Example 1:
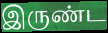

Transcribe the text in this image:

இருண்ட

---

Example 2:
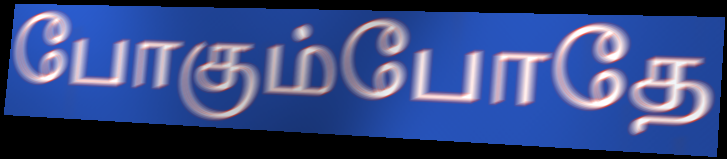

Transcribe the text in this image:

போகும்போதே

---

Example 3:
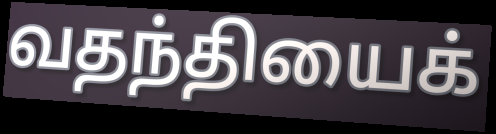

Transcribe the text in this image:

வதந்தியைக்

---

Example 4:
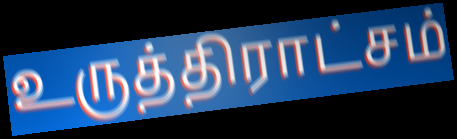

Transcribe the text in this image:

உருத்திராட்சம்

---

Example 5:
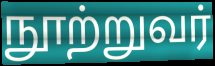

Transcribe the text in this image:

நூற்றுவர்